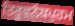
ਤਿਰੂਵਨੰਥਪੁਰਮ